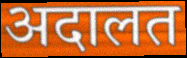
अदालत